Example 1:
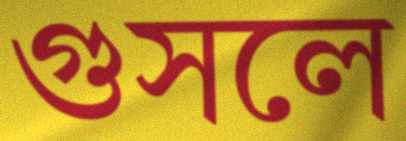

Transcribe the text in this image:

গুসলে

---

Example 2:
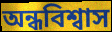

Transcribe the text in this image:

অন্ধবিশ্বাস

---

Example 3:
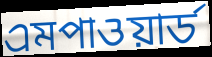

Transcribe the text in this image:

এমপাওয়ার্ড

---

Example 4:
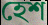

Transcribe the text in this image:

হেশ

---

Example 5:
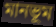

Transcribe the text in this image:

মানভূম